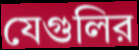
যেগুলির